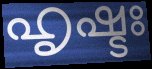
ഹൃഷ്ടഃ